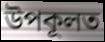
উপকূলত